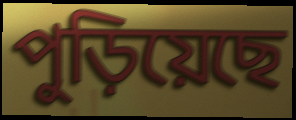
পুড়িয়েছে